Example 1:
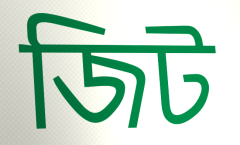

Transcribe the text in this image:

জিট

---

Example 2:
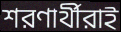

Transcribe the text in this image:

শরণার্থীরাই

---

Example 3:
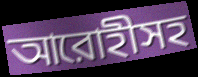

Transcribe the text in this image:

আরোহীসহ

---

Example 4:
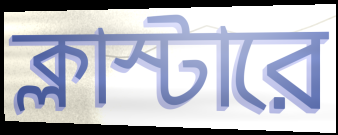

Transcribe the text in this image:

ক্লাস্টারে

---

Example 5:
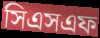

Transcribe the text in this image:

সিএসএফ